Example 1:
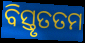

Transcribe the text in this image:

ବିସ୍ତୃତତମ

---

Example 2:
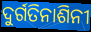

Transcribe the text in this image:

ଦୁର୍ଗତିନାଶିନୀ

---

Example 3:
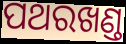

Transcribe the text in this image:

ପଥରଖଣ୍ଡ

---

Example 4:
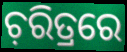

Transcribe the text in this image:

ଚ଼ରିତ୍ରରେ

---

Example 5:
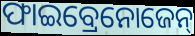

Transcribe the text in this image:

ଫାଇବ୍ରେନୋଜେନ୍